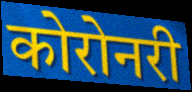
कोरोनरी